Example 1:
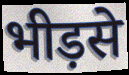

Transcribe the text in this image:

भीड़से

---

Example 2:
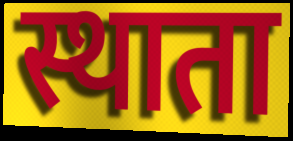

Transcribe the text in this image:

स्थाता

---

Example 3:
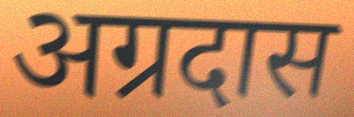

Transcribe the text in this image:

अग्रदास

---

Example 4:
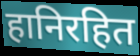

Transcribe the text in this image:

हानिरहित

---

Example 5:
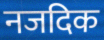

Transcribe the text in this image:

नजदिक